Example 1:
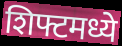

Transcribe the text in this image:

शिफ्टमध्ये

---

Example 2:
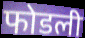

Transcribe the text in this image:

फोडली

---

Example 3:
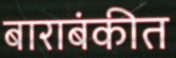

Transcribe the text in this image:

बाराबंकीत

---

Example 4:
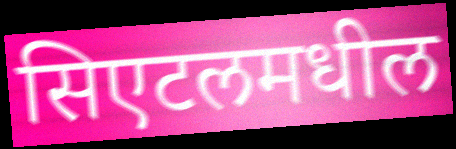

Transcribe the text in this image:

सिएटलमधील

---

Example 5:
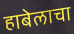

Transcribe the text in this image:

हाबेलाचा